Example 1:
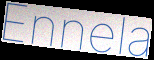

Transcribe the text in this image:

Ennela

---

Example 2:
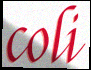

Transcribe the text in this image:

coli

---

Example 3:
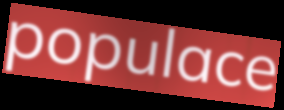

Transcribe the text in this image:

populace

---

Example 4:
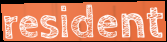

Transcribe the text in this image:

resident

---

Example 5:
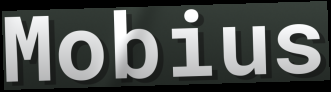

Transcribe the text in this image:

Mobius